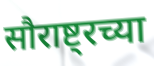
सौराष्ट्रच्या